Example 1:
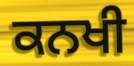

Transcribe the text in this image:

ਕਨਖੀ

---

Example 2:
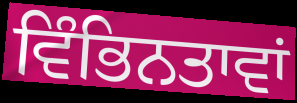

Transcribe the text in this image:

ਵਿੰਭਿਨਤਾਵਾਂ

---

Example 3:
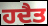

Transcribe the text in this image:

ਹਦੈਤ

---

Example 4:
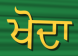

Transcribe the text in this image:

ਖੋਦਾ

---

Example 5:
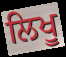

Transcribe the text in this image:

ਲਿਖੂ